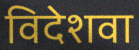
विदेशवा